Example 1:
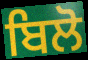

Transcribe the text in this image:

ਬਿਲੋ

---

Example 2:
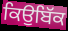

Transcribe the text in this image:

ਕਿਉਬਿੱਕ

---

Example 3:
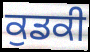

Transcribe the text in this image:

ਕੁਡਕੀ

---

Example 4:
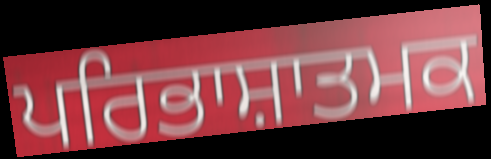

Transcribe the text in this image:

ਪਰਿਭਾਸ਼ਾਤਮਕ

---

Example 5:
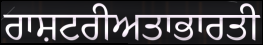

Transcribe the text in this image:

ਰਾਸ਼ਟਰੀਅਤਾਭਾਰਤੀ